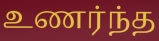
உணர்ந்த